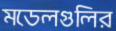
মডেলগুলির